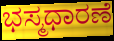
ಭಸ್ಮಧಾರಣೆ